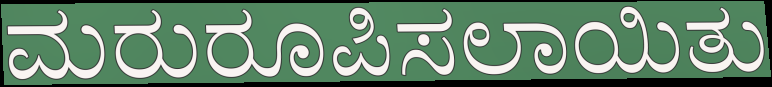
ಮರುರೂಪಿಸಲಾಯಿತು